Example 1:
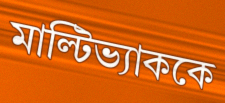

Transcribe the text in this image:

মাল্টিভ্যাককে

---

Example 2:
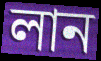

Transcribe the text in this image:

লান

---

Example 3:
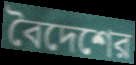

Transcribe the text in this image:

বৈদেশের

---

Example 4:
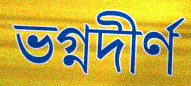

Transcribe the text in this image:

ভগ্নদীর্ণ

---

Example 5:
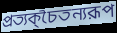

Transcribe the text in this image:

প্রত্যক্‌চৈতন্যরূপ